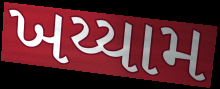
ખય્યામ